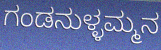
ಗಂಡನುಳ್ಳಮ್ಮನ